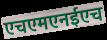
एचएमएनईएच